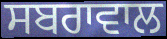
ਸਬਰਾਵਾਲ